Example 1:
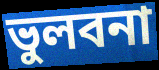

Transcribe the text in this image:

ভুলবনা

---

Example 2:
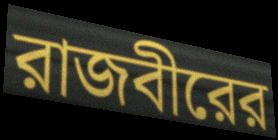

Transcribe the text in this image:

রাজবীরের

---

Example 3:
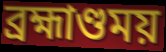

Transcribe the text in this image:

ব্রহ্মাণ্ডময়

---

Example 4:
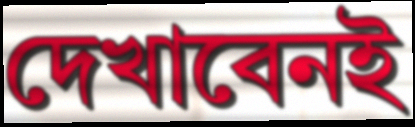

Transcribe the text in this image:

দেখাবেনই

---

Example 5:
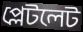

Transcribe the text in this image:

প্লেটলেট